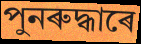
পুনৰুদ্ধাৰে